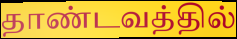
தாண்டவத்தில்